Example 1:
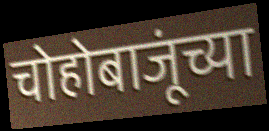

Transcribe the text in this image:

चोहोबाजूंच्या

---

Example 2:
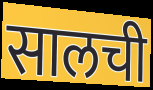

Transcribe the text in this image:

सालची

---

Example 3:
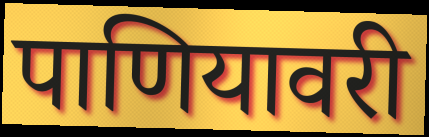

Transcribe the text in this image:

पाणियावरी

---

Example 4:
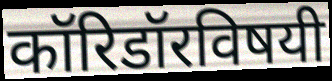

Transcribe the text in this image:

कॉरिडॉरविषयी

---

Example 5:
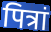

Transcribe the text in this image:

पित्रां